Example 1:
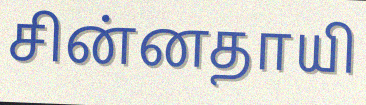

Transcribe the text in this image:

சின்னதாயி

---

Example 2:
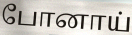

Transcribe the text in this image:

போனாய்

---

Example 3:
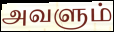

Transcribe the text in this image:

அவளும்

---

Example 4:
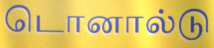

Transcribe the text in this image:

டொனால்டு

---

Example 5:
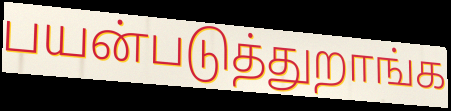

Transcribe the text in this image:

பயன்படுத்துறாங்க